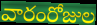
వారంరోజుల